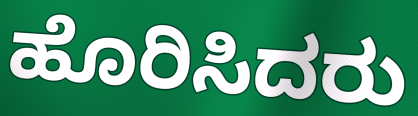
ಹೊರಿಸಿದರು